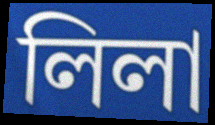
লিলা